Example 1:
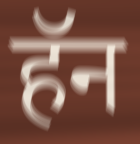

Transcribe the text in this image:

हॅन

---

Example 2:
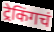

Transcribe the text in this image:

ट्रेकिंगचं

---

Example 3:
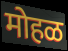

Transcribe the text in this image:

मोहळ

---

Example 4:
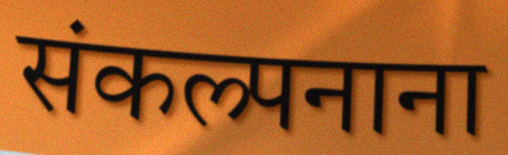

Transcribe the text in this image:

संकल्पनाना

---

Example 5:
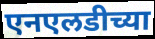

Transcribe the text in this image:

एनएलडीच्या